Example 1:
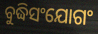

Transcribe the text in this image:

ବୁଦ୍ଧିସଂଯୋଗଂ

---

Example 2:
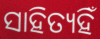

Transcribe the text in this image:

ସାହିତ୍ୟହିଁ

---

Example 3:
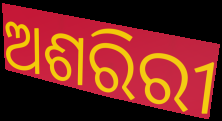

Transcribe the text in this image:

ଅଶରିରୀ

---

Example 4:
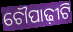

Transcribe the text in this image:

ଚୌପାଢ଼ୀଟି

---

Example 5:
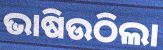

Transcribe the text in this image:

ଭାଷିଉଠିଲା